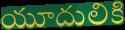
యూదులికి